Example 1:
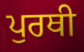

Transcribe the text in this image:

ਪੁਰਥੀ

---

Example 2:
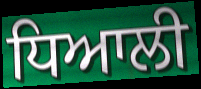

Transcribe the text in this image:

ਧਿਆਲੀ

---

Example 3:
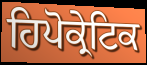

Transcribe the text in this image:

ਹਿਪੋਕ੍ਰੇਟਿਕ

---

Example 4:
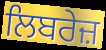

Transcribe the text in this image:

ਲਿਬਰੇਜ਼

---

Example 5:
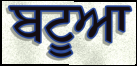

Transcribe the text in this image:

ਬਟੂਆ